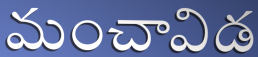
మంచావిడ